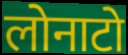
लोनाटो